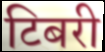
टिबरी